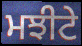
ਮਝੀਟੇ